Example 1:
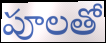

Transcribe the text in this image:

పూలతో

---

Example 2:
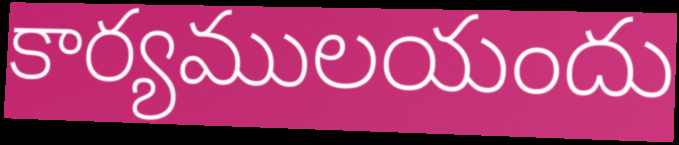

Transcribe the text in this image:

కార్యములయందు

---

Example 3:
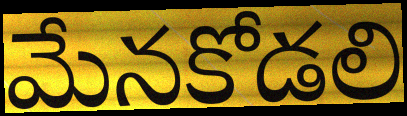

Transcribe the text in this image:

మేనకోడలి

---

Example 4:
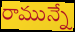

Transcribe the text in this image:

రామున్నే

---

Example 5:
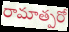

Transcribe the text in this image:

రామాత్పరో